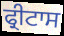
ਫ੍ਰੀਟਾਸ